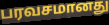
பரவசமானது